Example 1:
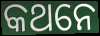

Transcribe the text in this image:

କଥନେ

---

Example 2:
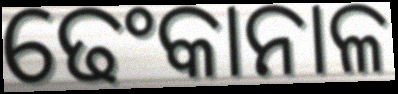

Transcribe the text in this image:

ଢେଂକାନାଳ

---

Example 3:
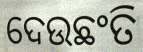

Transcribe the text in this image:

ଦେଉଛଂତି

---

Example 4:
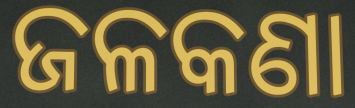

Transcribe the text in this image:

ଜଳକଣା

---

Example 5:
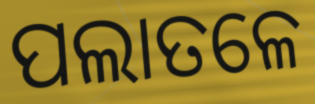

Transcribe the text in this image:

ପଲାତଳେ